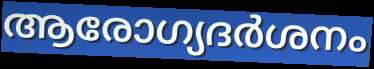
ആരോഗ്യദർശനം